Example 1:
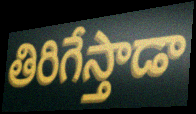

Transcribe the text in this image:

తిరిగేస్తాడా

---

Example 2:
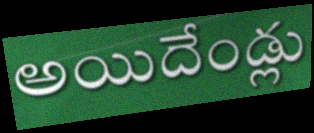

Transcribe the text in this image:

అయిదేండ్లు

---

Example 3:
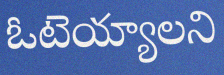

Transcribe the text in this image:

ఓటెయ్యాలని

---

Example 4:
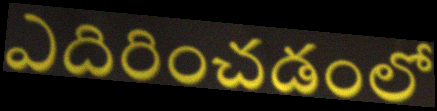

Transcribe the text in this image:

ఎదిరించడంలో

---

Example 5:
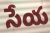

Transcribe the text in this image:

సేయ